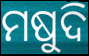
ମଷୁଦି